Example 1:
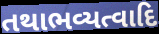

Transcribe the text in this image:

તથાભવ્યત્વાદિ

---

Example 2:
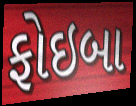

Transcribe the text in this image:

ફોઇબા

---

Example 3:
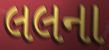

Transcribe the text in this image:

લલના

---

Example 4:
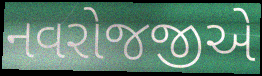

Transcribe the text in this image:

નવરોજજીએ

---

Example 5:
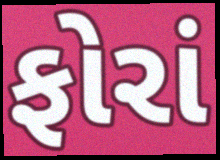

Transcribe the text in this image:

ફોરાં